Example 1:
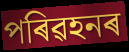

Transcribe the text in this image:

পৰিৱহনৰ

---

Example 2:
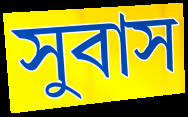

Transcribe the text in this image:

সুবাস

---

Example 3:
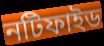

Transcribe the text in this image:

নটিফাইড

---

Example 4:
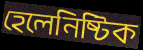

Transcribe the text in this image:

হেলেনিষ্টিক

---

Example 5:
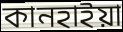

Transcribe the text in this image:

কানহাইয়া